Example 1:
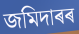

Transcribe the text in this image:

জমিদাৰৰ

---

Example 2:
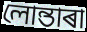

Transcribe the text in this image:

লোন্তাৰা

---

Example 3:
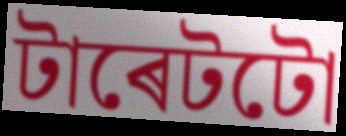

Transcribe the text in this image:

টাৰেটটো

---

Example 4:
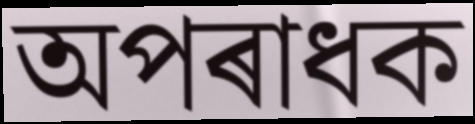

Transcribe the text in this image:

অপৰাধক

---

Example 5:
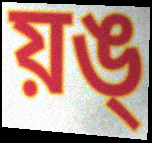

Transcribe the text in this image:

য়ঙ্